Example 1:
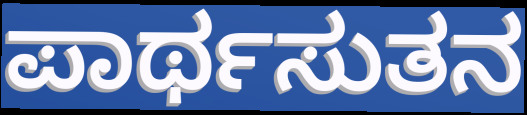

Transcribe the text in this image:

ಪಾರ್ಥಸುತನ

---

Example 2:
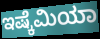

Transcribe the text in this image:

ಇಷ್ಕೆಮಿಯಾ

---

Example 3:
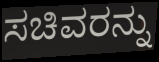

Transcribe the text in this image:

ಸಚಿವರನ್ನು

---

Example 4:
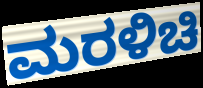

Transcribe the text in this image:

ಮರಳಿಚಿ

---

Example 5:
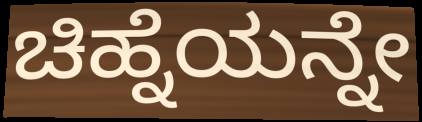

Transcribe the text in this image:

ಚಿಹ್ನೆಯನ್ನೇ